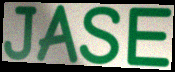
JASE